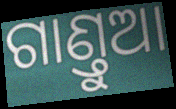
ଗାଣ୍ତୁଆ